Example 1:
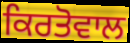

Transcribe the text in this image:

ਕਿਰਤੋਵਾਲ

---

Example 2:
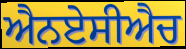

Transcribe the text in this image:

ਐਨਏਸੀਐਚ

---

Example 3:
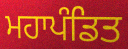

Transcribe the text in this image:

ਮਹਾਪੰਡਿਤ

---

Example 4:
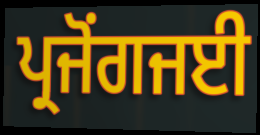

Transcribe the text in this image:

ਪ੍ਰਜੋਂਗਜਈ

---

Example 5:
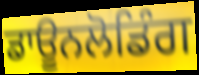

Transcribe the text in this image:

ਡਾਊਨਲੋਡਿੰਗ